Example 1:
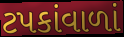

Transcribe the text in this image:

ટપકાંવાળાં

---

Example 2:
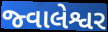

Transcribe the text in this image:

જ્વાલેશ્વર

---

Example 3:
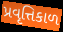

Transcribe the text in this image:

પ્રવૃત્તિકાળ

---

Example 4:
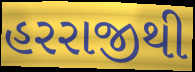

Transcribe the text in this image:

હરરાજીથી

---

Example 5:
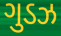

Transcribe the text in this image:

ગુડઝ